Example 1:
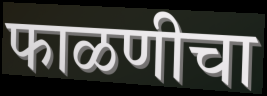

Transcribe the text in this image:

फाळणीचा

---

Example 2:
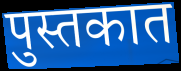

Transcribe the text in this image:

पुस्तकात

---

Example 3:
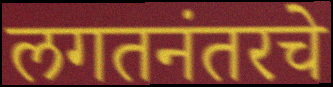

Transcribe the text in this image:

लगतनंतरचे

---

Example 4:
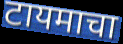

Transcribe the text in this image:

टायमाचा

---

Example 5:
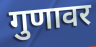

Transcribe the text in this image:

गुणावर